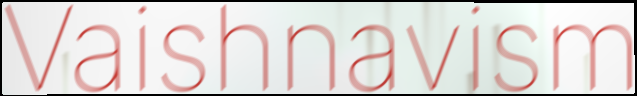
Vaishnavism